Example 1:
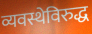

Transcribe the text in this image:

व्यवस्थेविरुद्ध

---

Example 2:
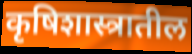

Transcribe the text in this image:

कृषिशास्त्रातील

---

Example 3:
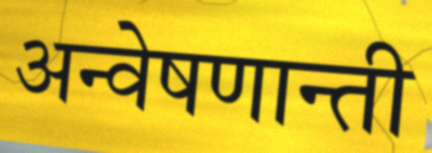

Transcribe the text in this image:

अन्वेषणान्ती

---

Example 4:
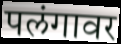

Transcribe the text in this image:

पलंगावर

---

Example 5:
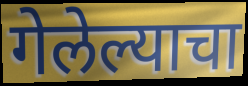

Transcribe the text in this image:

गेलेल्याचा